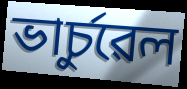
ভাৰ্চুৱেল